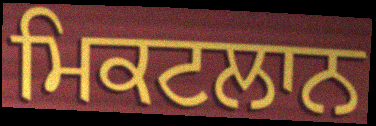
ਮਿਕਟਲਾਨ